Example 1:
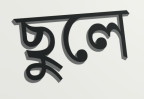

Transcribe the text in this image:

ছুলে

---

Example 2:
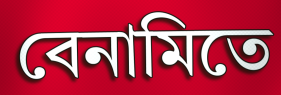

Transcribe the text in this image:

বেনামিতে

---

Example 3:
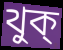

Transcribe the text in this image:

থুক্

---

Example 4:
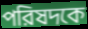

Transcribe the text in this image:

পরিষদকে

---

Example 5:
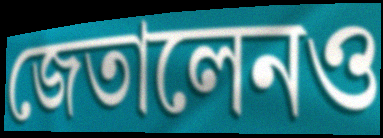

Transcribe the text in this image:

জেতালেনও